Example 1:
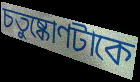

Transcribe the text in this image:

চতুষ্কোণটাকে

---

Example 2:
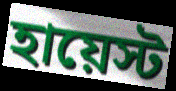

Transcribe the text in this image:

হায়েস্ট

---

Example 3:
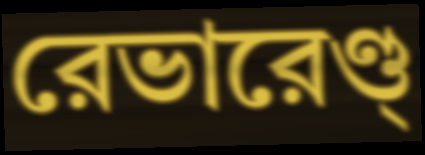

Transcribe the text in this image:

রেভারেণ্ড্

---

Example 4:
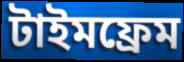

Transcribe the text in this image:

টাইমফ্রেম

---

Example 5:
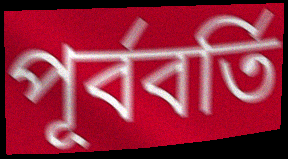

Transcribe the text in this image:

পূর্ববর্তি